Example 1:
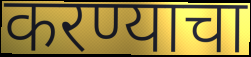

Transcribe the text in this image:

करण्याचा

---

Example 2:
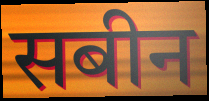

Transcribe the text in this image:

सबीन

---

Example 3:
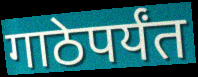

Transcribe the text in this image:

गाठेपर्यंत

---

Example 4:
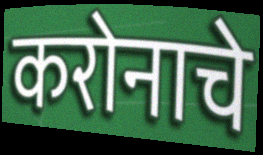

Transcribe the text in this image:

करोनाचे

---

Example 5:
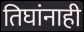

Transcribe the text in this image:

तिघांनाही